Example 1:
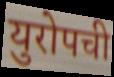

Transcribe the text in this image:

युरोपची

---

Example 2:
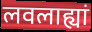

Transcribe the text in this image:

लवलाह्यां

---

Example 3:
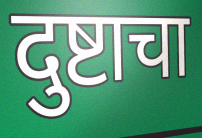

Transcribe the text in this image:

दुष्टाचा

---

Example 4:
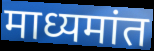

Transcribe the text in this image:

माध्यमांत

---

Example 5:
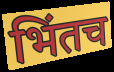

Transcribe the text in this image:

भिंतच